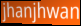
jhanjhwan